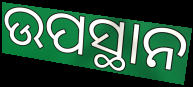
ଉପସ୍ଥାନ